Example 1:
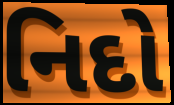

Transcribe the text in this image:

નિદો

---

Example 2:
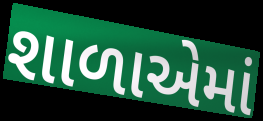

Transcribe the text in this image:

શાળાએમાં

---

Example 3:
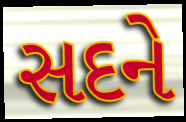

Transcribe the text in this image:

સદને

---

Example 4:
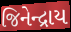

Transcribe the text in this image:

જિનેન્દ્રાય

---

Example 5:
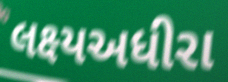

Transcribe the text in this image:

લક્ષ્યઅધીરા